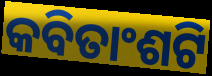
କବିତାଂଶଟି